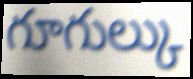
గూగుల్కు